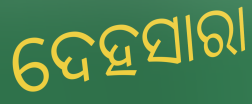
ଦେହସାରା